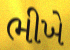
ભીખે